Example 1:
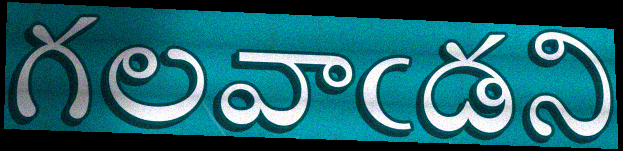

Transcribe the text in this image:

గలవాఁడని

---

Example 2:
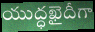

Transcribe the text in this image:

యుద్ధఖైదీగా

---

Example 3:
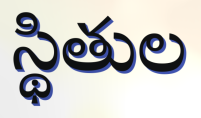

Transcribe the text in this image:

స్థితుల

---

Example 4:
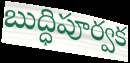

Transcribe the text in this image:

బుద్ధిపూర్వక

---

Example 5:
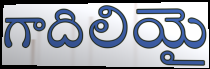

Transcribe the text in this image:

గాదిలియై